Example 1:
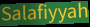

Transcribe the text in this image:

Salafiyyah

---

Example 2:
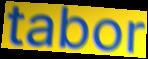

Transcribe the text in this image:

tabor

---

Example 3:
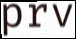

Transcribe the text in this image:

prv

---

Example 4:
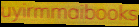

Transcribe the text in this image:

uyirmmaibooks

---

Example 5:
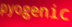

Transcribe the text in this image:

pyogenic